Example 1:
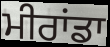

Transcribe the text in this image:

ਮੀਰਾਂਡਾ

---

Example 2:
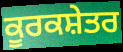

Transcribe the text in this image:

ਕੂਰਕਸ਼ੇਤਰ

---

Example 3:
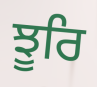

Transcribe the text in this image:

ਝੂਰਿ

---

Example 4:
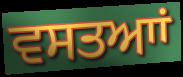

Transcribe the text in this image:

ਵਸਤਆਾਂ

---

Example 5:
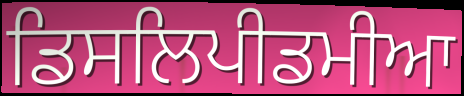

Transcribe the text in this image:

ਡਿਸਲਿਪੀਡਮੀਆ